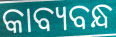
କାବ୍ୟବନ୍ଧ